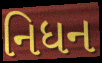
નિધન